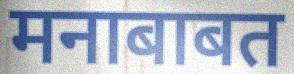
मनाबाबत